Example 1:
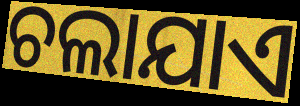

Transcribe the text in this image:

ଚଲାଯାଏ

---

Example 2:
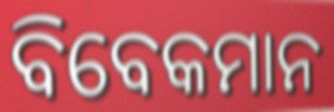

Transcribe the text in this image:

ବିବେକମାନ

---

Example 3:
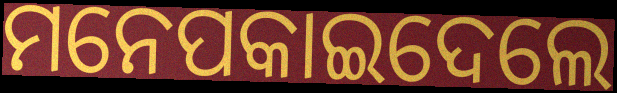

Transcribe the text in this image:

ମନେପକାଇଦେଲେ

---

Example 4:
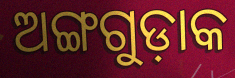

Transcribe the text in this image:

ଅଙ୍ଗଗୁଡ଼ାକ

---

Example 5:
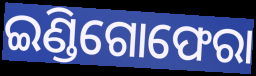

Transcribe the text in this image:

ଇଣ୍ଡିଗୋଫେରା